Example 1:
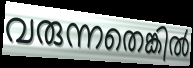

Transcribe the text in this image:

വരുന്നതെങ്കിൽ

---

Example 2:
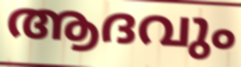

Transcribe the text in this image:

ആദവും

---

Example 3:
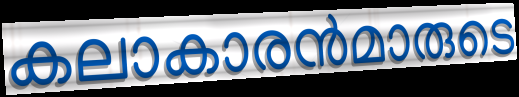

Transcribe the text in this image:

കലാകാരൻമാരുടെ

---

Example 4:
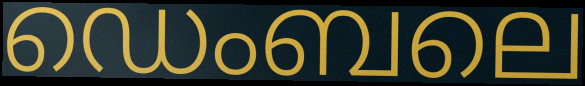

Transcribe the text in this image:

ഡെംബലെ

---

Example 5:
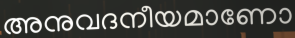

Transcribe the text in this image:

അനുവദനീയമാണോ